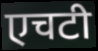
एचटी